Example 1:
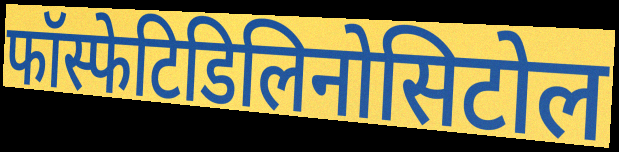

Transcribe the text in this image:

फॉस्फेटिडिलिनोसिटोल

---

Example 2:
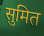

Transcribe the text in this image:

सुमित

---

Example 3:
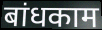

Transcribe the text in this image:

बांधकाम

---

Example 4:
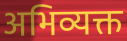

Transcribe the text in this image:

अभिव्यक्त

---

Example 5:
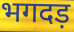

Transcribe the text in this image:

भगदड़